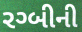
રગ્બીની